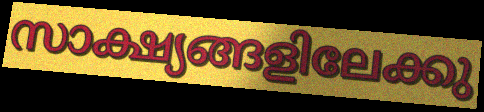
സാക്ഷ്യങ്ങളിലേക്കു